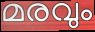
മരവും